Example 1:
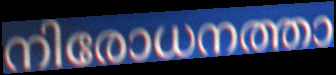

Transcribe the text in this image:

നിരോധനത്താ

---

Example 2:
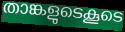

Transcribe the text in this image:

താങ്കളുടെകൂടെ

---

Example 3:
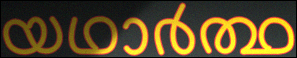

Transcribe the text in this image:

യഥാർത്ഥ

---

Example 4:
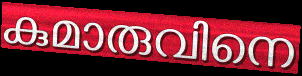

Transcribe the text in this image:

കുമാരുവിനെ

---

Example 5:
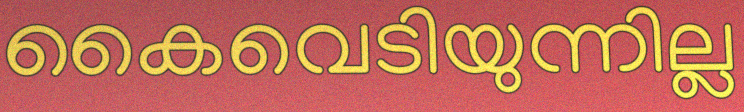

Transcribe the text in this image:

കൈവെടിയുന്നില്ല